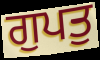
ਗੁਪਤੁ